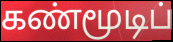
கண்மூடிப்